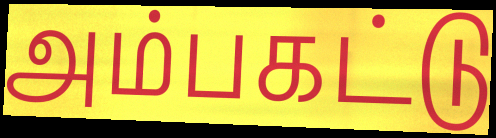
அம்பகட்டு